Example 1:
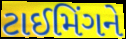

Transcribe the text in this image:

ટાઈમિંગને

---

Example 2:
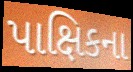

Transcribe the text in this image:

પાક્ષિકના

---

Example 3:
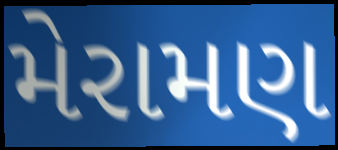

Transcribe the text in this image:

મેરામણ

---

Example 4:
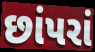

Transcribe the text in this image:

છાંપરાં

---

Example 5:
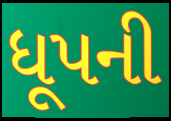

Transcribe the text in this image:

ધૂપની